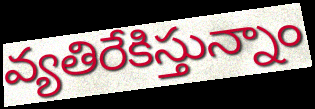
వ్యతిరేకిస్తున్నాం